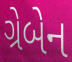
ગ્રેબેન